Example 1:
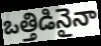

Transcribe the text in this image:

ఒత్తిడినైనా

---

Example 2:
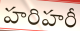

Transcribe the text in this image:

హరిహరీ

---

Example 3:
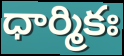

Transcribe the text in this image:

ధార్మికః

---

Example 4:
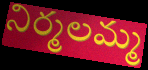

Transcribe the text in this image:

నిర్మలమ్మ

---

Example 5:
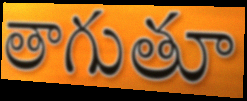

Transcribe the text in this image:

తాగుతూ